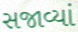
સજાવ્યાં